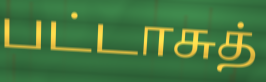
பட்டாசுத்